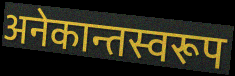
अनेकान्तस्वरूप